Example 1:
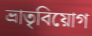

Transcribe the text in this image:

ভ্রাতৃবিয়োগ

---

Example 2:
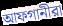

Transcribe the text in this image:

আফগানীরা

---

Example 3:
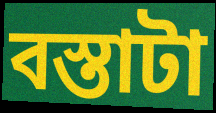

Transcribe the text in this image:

বস্তাটা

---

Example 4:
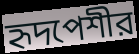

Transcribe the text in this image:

হৃদপেশীর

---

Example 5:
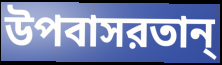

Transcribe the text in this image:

উপবাসরতান্